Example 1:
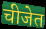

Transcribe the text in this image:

चीजेत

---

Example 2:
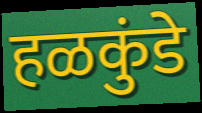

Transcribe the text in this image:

हळकुंडे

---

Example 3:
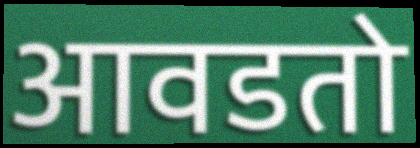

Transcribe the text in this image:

आवडतो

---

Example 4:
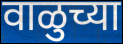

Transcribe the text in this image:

वाळुच्या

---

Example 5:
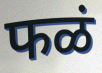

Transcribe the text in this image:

फळं